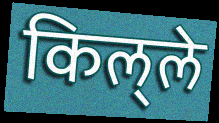
किल्ले